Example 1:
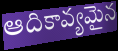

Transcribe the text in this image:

ఆదికావ్యమైన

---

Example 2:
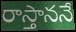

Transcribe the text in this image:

రాస్తాననే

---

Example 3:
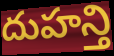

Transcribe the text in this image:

దుహన్తి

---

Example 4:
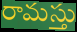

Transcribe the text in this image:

రామస్తు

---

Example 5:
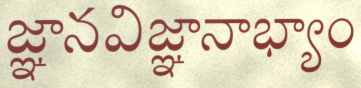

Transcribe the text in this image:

జ్ఞానవిజ్ఞానాభ్యాం